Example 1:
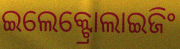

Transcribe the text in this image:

ଇଲେକ୍ଟ୍ରୋଲାଇଜିଂ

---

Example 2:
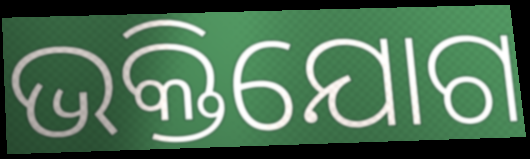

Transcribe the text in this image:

ଭକ୍ତିଯୋଗ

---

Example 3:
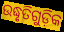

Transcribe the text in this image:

ଉଦ୍ଧୃତିଗୁଡ଼ିକ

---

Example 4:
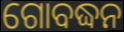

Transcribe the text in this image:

ଗୋବଦ୍ଧନ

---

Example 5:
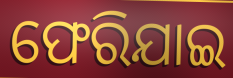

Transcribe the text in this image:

ଫେରିଯାଇ